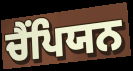
ਚੈੰਪਿਯਨ